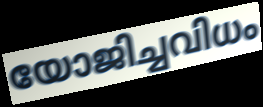
യോജിച്ചവിധം